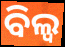
ବିଲ୍ଵ